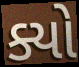
ક્યો